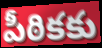
పీఠికకు